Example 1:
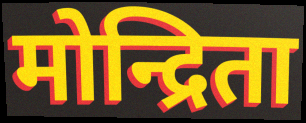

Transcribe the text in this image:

मोन्द्रिता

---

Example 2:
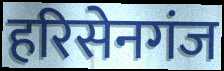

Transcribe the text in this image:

हरिसेनगंज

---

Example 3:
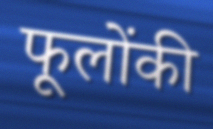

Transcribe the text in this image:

फूलोंकी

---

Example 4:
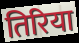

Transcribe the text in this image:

तिरिया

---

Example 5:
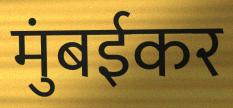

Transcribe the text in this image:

मुंबईकर